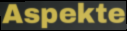
Aspekte